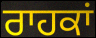
ਰਾਹਕਾਂ